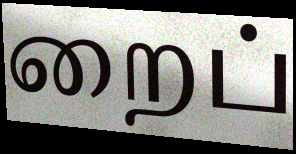
றைப்